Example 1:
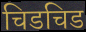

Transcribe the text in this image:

चिडचिड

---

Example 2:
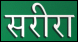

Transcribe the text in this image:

सरीरा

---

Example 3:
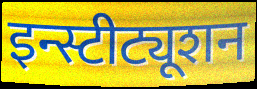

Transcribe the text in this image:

इन्स्टीट्यूशन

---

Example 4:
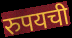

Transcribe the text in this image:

रुपयची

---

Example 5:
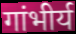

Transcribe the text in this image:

गांभीर्य